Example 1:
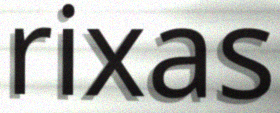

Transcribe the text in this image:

rixas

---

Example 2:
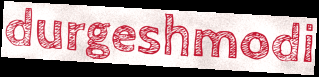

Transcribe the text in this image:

durgeshmodi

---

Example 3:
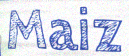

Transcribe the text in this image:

Maiz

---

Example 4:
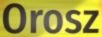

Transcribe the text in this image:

Orosz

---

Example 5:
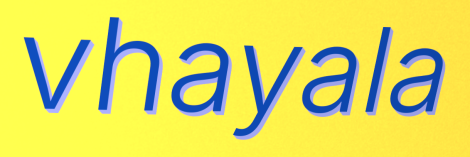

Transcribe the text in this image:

vhayala